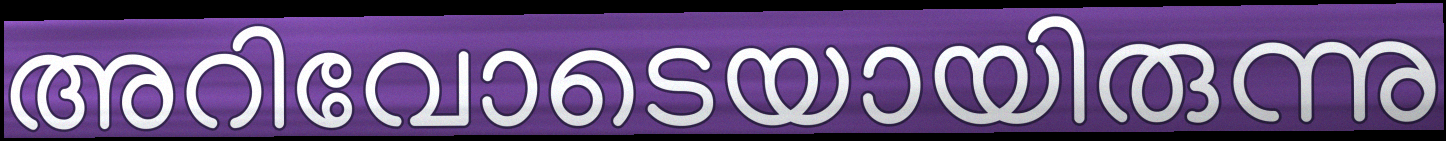
അറിവോടെയായിരുന്നു